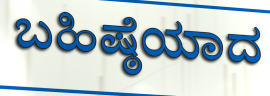
ಬಹಿಷ್ಠೆಯಾದ